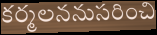
కర్మలననుసరించి